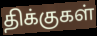
திக்குகள்